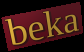
beka